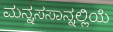
ಮನ್ನಸಸಾನ್ನಲ್ಲಿಯೆ